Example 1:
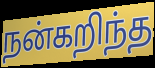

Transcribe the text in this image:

நன்கறிந்த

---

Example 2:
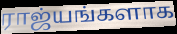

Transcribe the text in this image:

ராஜ்யங்களாக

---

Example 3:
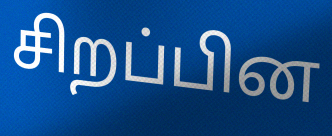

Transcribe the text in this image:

சிறப்பின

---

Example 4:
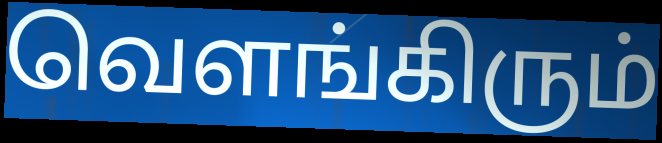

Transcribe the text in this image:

வெளங்கிரும்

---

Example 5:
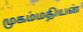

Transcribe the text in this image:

முகம்மதியன்